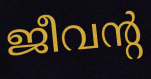
ജീവന്റ